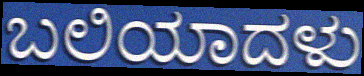
ಬಲಿಯಾದಳು